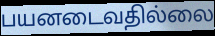
பயனடைவதில்லை